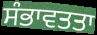
ਸੰਭਾਵਤਤਾ